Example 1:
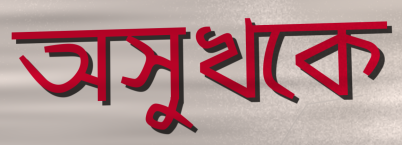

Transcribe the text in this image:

অসুখকে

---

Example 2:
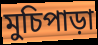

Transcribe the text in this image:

মুচিপাড়া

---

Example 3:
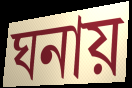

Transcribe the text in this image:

ঘনায়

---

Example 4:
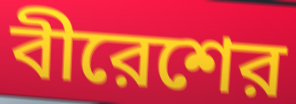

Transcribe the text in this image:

বীরেশের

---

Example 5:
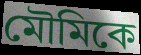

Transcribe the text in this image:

মৌমিকে